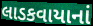
લાડકવાયાનાં